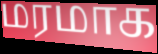
மரமாக